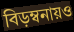
বিড়ম্বনায়ও